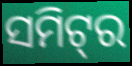
ସମିଟ୍‌ର